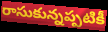
రాసుకున్నప్పటికీ